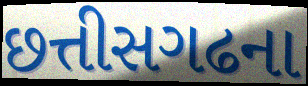
છત્તીસગઢના